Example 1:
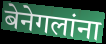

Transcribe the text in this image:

बेनेगलांना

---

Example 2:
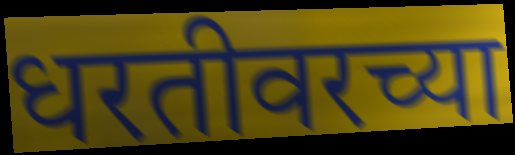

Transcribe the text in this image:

धरतीवरच्या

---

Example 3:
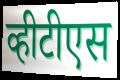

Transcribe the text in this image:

व्हीटीएस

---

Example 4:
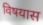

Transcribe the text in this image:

विषयास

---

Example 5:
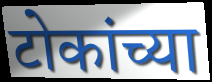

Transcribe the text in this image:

टोकांच्या